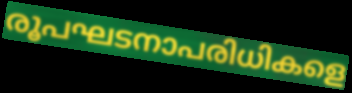
രൂപഘടനാപരിധികളെ